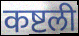
कष्टली